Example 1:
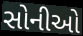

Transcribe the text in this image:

સોનીઓ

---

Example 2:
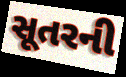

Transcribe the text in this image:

સૂતરની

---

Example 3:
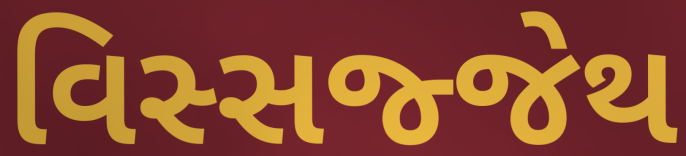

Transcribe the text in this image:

વિસ્સજ્જેથ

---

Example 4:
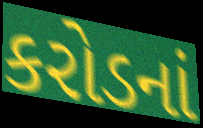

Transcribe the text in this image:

કરોડનાં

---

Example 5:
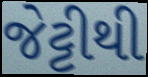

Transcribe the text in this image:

જેટ્ટીથી